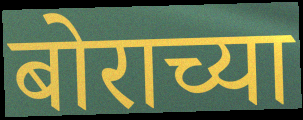
बोराच्या